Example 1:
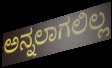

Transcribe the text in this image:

ಅನ್ನಲಾಗಲಿಲ್ಲ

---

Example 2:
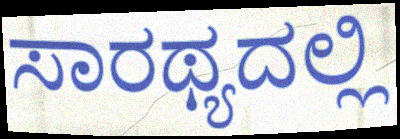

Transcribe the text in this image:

ಸಾರಥ್ಯದಲ್ಲಿ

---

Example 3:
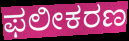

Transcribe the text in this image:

ಫಲೀಕರಣ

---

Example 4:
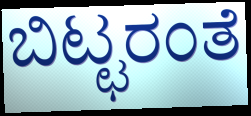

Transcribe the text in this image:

ಬಿಟ್ಟರಂತೆ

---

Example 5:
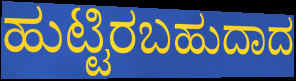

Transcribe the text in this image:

ಹುಟ್ಟಿರಬಹುದಾದ